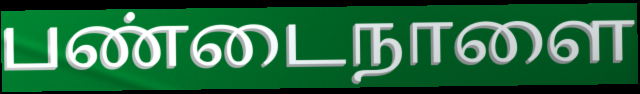
பண்டைநாளை